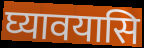
घ्यावयासि